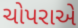
ચોપરાએ